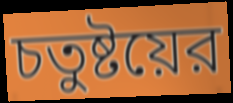
চতুষ্টয়ের